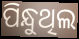
ପିନ୍ଧୁଥିଲ